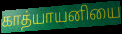
காத்யாயனியை